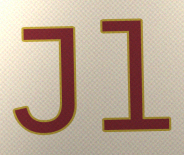
Jl